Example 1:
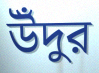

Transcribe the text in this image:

উঁদুর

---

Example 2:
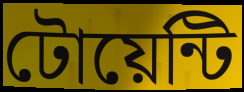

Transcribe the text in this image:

টোয়েন্টি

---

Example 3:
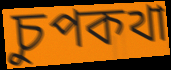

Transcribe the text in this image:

চুপকথা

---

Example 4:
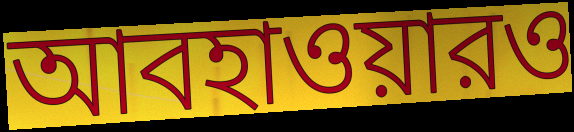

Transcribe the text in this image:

আবহাওয়ারও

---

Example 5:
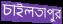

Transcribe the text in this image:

চাইলতাপুর